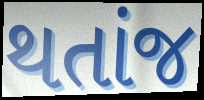
થતાંજ